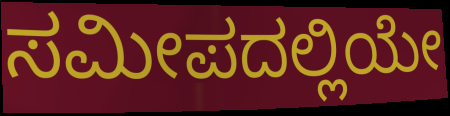
ಸಮೀಪದಲ್ಲಿಯೇ